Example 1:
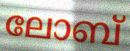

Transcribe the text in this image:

ലോബ്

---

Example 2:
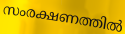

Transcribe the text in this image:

സംരക്ഷണത്തിൽ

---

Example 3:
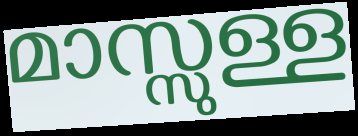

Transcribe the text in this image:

മാസ്സുള്ള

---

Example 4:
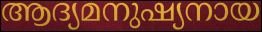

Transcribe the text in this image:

ആദ്യമനുഷ്യനായ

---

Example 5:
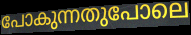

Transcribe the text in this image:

പോകുന്നതുപോലെ